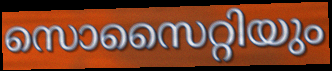
സൊസൈറ്റിയും